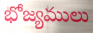
భోజ్యములు